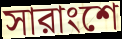
সারাংশে